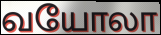
வயோலா